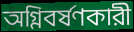
অগ্নিবর্ষণকারী